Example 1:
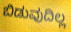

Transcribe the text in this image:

ಬಿಡುವುದಿಲ್ಲ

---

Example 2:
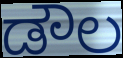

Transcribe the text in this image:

ಡೌಲ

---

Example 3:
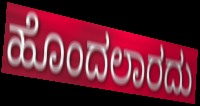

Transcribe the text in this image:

ಹೊಂದಲಾರದು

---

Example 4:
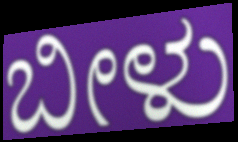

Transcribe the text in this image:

ಬೀಳು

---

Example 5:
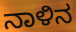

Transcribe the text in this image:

ನಾಳಿನ